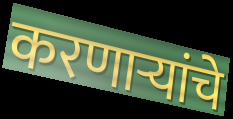
करणाऱ्यांचे